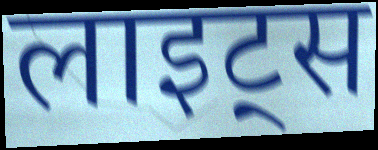
लाइट्स